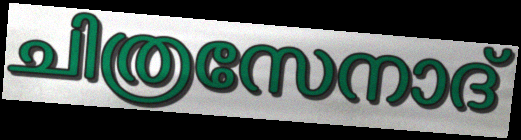
ചിത്രസേനാദ്